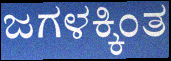
ಜಗಳಕ್ಕಿಂತ